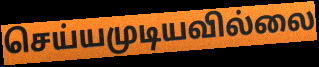
செய்யமுடியவில்லை